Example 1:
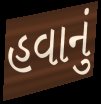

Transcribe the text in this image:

હવાનું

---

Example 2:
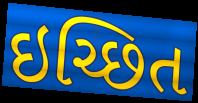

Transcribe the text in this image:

ઇચ્છિત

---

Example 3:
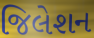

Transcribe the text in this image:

જિલેશન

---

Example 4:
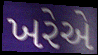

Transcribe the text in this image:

ખરેએ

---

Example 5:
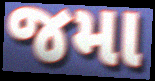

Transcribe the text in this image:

જમા